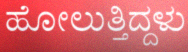
ಹೋಲುತ್ತಿದ್ದಳು